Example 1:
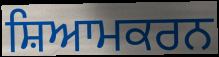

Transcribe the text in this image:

ਸ਼ਿਆਮਕਰਨ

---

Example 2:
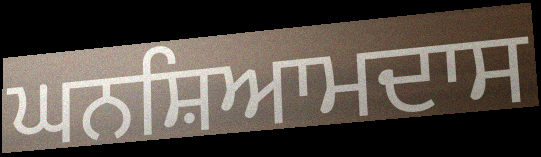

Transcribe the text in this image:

ਘਨਸ਼ਿਆਮਦਾਸ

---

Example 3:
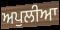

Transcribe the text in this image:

ਅਪੁਲੀਆ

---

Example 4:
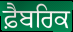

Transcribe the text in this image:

ਫ਼ੈਬਰਿਕ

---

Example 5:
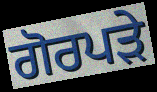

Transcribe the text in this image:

ਗੋਰਪੜੇ